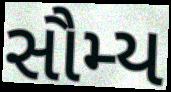
સૌમ્ય